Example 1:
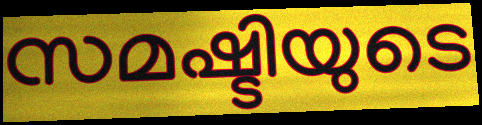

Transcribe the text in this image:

സമഷ്ടിയുടെ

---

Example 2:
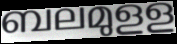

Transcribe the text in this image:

ബലമുളള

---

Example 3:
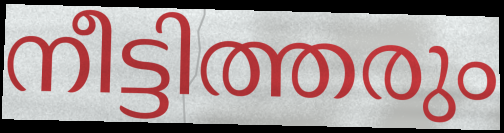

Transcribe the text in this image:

നീട്ടിത്തരും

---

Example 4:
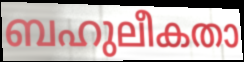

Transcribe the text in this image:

ബഹുലീകതാ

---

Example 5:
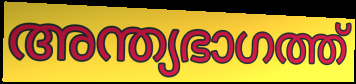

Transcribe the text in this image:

അന്ത്യഭാഗത്ത്